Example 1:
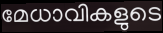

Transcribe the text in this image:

മേധാവികളുടെ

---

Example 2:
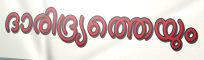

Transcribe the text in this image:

ദാരിദ്ര്യത്തെയും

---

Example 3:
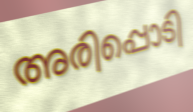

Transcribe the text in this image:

അരിപ്പൊടി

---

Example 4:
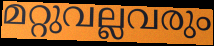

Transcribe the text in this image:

മറ്റുവല്ലവരും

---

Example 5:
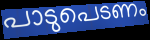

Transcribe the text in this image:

പാടുപെടണം